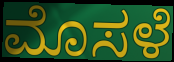
ಮೊಸಳೆ